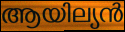
ആയില്യൻ